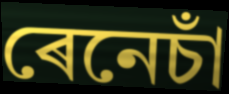
ৰেনেচাঁ